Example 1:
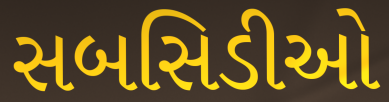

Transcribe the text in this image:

સબસિડીઓ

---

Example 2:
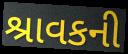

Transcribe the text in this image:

શ્રાવકની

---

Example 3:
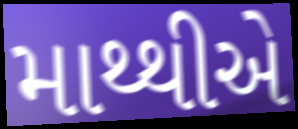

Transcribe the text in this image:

માથ્થીએ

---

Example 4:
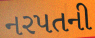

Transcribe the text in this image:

નરપતની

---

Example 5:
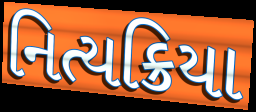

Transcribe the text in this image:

નિત્યક્રિયા